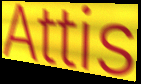
Attis